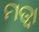
ମତ୍ୱା